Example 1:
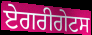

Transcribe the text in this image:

ਏਗਰੀਗੇਟਸ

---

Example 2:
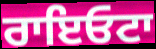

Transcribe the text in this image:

ਰਾਇਓਟਾ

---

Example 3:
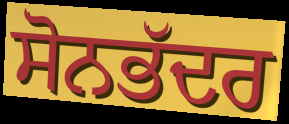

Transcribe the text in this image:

ਸੋਨਭੱਦਰ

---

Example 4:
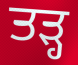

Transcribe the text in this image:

ਤੜ੍ਹ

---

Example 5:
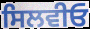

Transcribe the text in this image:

ਸਿਲਵੀਓ